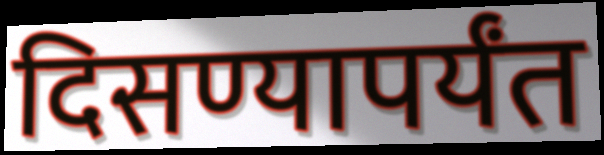
दिसण्यापर्यंत